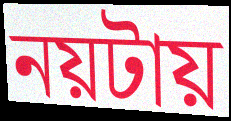
নয়টায়